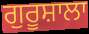
ਗੁਰੂਸ਼ਾਲਾ